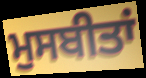
ਮੁਸਬੀਤਾਂ